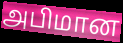
அபிமான